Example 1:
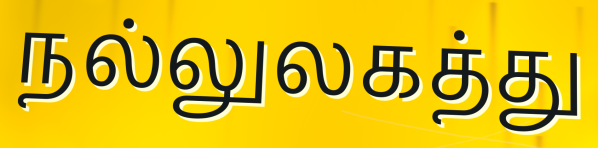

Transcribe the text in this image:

நல்லுலகத்து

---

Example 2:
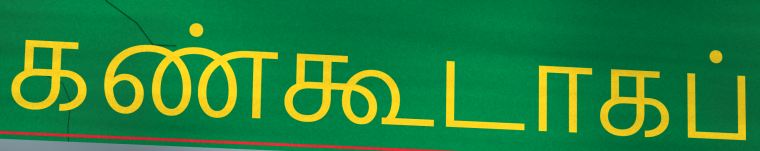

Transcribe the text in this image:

கண்கூடாகப்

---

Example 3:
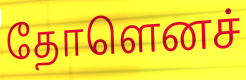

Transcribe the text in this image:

தோளெனச்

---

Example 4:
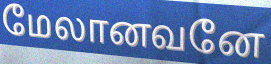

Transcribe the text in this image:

மேலானவனே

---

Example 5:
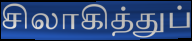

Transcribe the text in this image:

சிலாகித்துப்